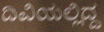
ದಿವಿಯಲ್ಲಿದ್ದ